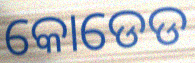
କୋଡେଡ